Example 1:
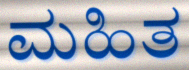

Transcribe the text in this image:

ಮಹಿತ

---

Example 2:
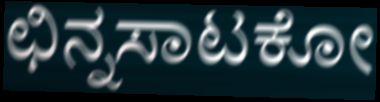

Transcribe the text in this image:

ಛಿನ್ನಸಾಟಕೋ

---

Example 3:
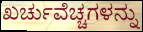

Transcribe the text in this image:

ಖರ್ಚುವೆಚ್ಚಗಳನ್ನು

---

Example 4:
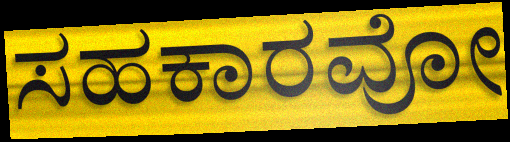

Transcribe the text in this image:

ಸಹಕಾರವೋ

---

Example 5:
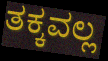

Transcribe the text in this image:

ತಕ್ಕವಲ್ಲ